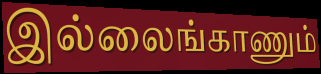
இல்லைங்காணும்